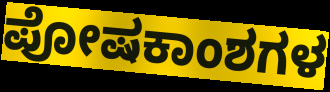
ಪೋಷಕಾಂಶಗಳ